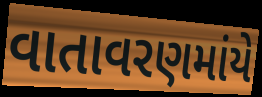
વાતાવરણમાંયે